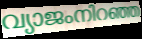
വ്യാജംനിറഞ്ഞ